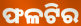
ଫଳଟିର